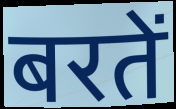
बरतें